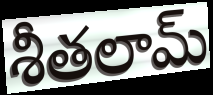
శీతలామ్